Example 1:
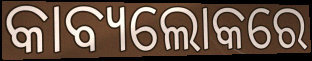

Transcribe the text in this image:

କାବ୍ୟଲୋକରେ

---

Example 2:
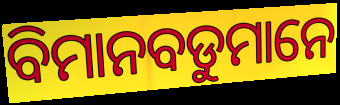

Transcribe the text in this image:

ବିମାନବଡୁମାନେ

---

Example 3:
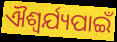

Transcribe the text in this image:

ଐଶ୍ୱର୍ଯ୍ୟପାଇଁ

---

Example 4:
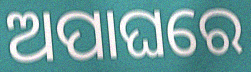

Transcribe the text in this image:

ଅପାଘରେ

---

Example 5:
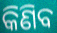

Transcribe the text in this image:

କିଣିବ